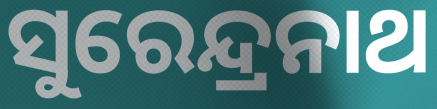
ସୁରେନ୍ଦ୍ରନାଥ